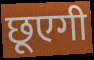
छूएगी